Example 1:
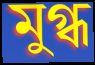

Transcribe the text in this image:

মুগ্ধ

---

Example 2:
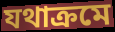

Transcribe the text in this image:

যথাক্ৰমে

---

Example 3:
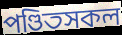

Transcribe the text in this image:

পণ্ডিতসকল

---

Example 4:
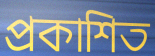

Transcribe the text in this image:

প্ৰকাশিত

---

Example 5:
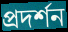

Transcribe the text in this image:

প্ৰদৰ্শন